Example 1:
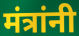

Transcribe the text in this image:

मंत्रांनी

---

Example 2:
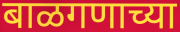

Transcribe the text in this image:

बाळगणाच्या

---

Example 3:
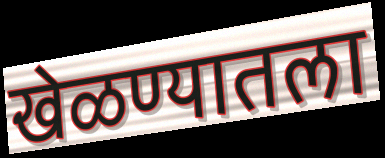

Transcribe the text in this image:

खेळण्यातला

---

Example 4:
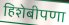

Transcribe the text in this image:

हिशेबीपणा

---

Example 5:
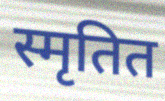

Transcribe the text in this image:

स्मृतित